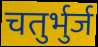
चतुर्भुर्ज